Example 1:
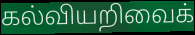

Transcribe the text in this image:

கல்வியறிவைக்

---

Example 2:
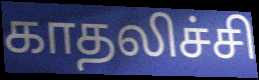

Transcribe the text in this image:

காதலிச்சி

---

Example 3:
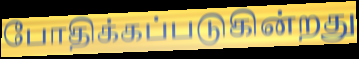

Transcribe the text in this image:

போதிக்கப்படுகின்றது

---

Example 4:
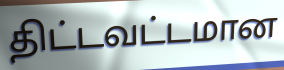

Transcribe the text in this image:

திட்டவட்டமான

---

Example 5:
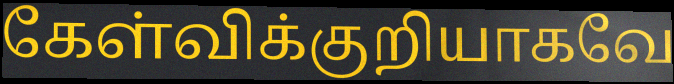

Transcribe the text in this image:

கேள்விக்குறியாகவே